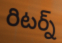
రిటర్న్